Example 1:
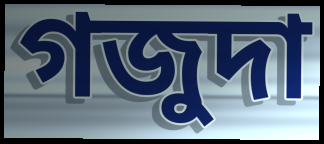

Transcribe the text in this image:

গজুদা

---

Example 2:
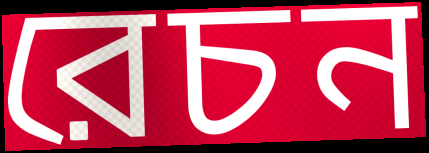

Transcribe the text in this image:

রেচন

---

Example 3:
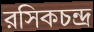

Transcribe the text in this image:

রসিকচন্দ্র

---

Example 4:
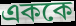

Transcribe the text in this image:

এককে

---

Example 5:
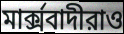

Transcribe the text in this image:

মার্ক্সবাদীরাও